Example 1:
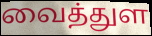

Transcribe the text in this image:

வைத்துள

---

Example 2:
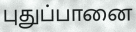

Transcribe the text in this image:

புதுப்பானை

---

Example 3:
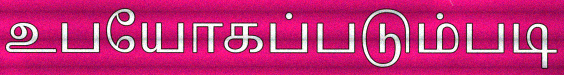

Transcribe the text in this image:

உபயோகப்படும்படி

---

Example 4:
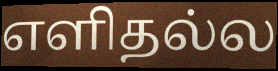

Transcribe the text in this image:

எளிதல்ல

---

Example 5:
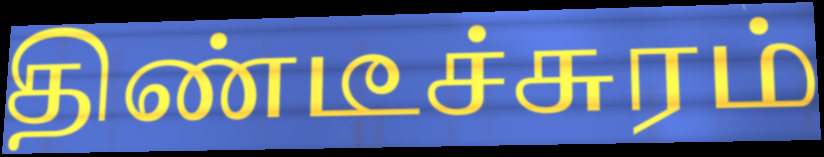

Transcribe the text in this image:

திண்டீச்சுரம்